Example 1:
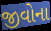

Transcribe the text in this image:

જીવોના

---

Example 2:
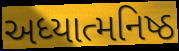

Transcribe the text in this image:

અધ્યાત્મનિષ્ઠ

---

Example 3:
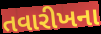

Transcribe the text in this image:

તવારીખના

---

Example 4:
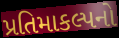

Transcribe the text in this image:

પ્રતિમાકલ્પનો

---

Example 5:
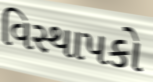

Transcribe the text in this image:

વિસ્થાપકો